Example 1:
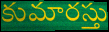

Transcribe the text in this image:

కుమారస్తు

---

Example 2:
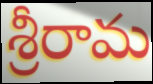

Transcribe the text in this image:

శ్రీరామ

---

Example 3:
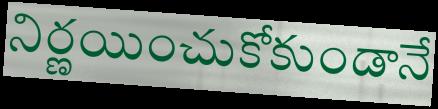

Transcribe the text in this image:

నిర్ణయించుకోకుండానే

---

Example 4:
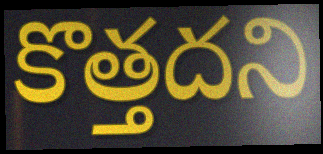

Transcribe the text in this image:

కొత్తదని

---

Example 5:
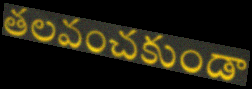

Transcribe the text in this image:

తలవంచకుండా